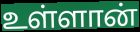
உள்ளான்